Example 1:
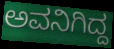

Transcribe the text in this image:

ಅವನಿಗಿದ್ದ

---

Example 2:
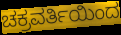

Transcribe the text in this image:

ಚಕ್ರವರ್ತಿಯಿಂದ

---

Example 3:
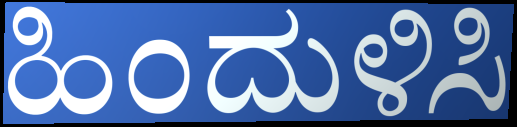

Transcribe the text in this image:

ಹಿಂದುಳಿಸಿ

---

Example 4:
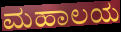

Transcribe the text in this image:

ಮಹಾಲಯ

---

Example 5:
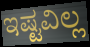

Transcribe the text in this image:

ಇಷ್ಟವಿಲ್ಲ